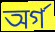
অৰ্গ